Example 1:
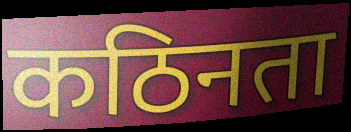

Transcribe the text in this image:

कठिनता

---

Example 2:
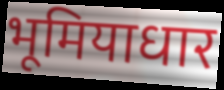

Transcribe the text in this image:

भूमियाधार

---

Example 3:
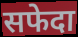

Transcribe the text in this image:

सफेदा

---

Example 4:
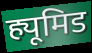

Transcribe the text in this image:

ह्यूमिड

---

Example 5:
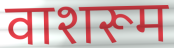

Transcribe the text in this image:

वाशरूम